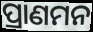
ପ୍ରାଣମନ